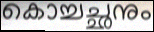
കൊച്ചച്ഛനും